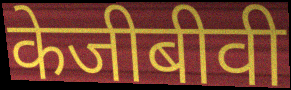
केजीबीवी